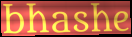
bhashe